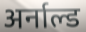
अर्नाल्ड